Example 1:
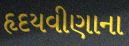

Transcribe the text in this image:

હૃદયવીણાના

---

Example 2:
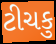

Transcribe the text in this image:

ટીચકુ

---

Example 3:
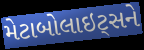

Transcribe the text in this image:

મેટાબોલાઇટ્સને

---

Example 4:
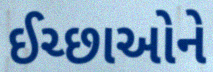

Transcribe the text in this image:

ઈચ્છાઓને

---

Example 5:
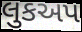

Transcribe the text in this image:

લુકઅપ